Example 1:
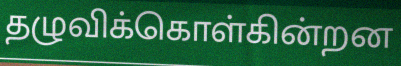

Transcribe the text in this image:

தழுவிக்கொள்கின்றன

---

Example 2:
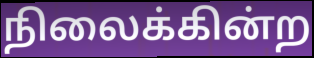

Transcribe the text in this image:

நிலைக்கின்ற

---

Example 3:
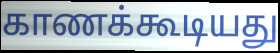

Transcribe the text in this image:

காணக்கூடியது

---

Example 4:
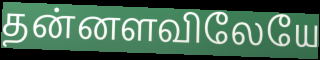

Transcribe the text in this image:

தன்னளவிலேயே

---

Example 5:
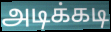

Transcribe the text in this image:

அடிக்கடி